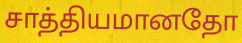
சாத்தியமானதோ